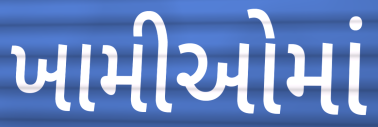
ખામીઓમાં